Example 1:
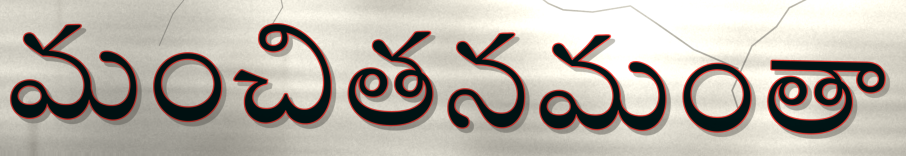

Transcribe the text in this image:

మంచితనమంతా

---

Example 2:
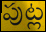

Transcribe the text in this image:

పుట్ల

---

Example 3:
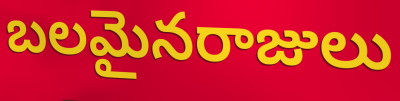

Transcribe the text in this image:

బలమైనరాజులు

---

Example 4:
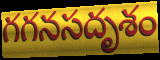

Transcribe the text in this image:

గగనసదృశం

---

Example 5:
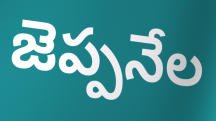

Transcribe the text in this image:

జెప్పనేల